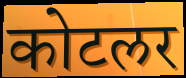
कोटलर